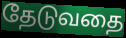
தேடுவதை